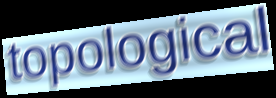
topological